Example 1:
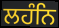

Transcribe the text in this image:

ਲਹੰਨਿ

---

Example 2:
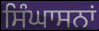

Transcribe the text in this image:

ਸਿੰਘਾਸਨਾਂ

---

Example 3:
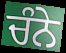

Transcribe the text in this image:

ਚੰਨੇ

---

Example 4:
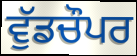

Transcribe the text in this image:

ਵੁੱਡਚੌਪਰ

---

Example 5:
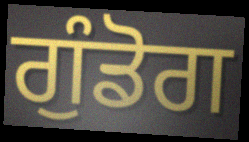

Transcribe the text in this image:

ਗੁੰਡੋਗ